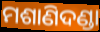
ମଶାଣିଦଣ୍ଡା